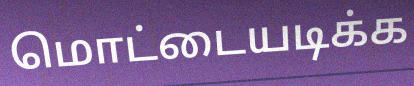
மொட்டையடிக்க